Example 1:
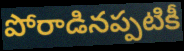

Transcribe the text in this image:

పోరాడినప్పటికీ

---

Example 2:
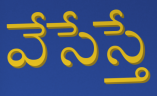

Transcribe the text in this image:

వేసేస్తే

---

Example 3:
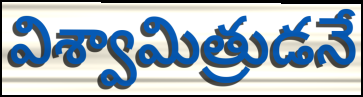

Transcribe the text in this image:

విశ్వామిత్రుడనే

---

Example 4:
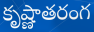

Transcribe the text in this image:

కృష్ణాతరంగ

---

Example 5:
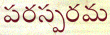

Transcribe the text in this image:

పరస్పరమ